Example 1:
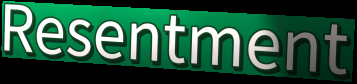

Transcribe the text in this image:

Resentment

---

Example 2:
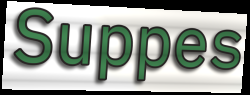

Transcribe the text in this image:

Suppes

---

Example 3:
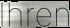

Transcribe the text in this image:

Ihren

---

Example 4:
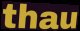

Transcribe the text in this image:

thau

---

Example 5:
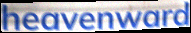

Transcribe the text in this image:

heavenward